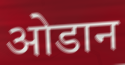
ओडान